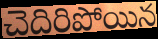
చెదిరిపోయిన